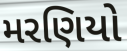
મરણિયો